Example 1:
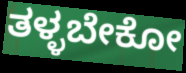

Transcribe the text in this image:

ತಳ್ಳಬೇಕೋ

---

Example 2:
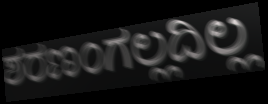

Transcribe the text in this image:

ಶರಣಂಗಲ್ಲದಿಲ್ಲ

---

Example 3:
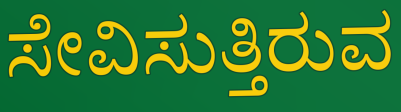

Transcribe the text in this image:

ಸೇವಿಸುತ್ತಿರುವ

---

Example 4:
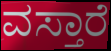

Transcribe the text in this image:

ವಸ್ತಾರೆ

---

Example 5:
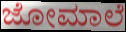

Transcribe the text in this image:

ಜೋಮಾಲೆ